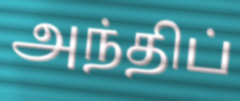
அந்திப்